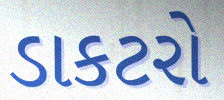
ડાકટરો